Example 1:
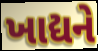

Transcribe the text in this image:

ખાદ્યને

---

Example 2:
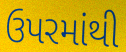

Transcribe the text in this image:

ઉપરમાંથી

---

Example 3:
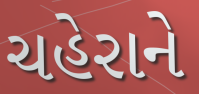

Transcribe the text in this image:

ચહેરાને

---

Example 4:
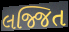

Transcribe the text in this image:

લજ્જિત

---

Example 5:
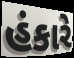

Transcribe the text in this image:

હંકારે